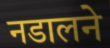
नडालने